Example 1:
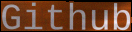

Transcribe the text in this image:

Github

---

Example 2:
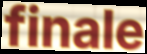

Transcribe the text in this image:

finale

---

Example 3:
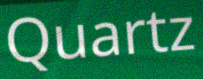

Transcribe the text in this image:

Quartz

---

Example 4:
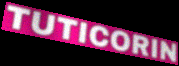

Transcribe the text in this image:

TUTICORIN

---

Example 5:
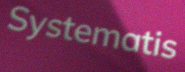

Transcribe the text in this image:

Systematis